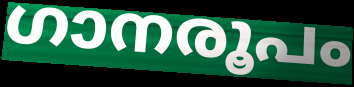
ഗാനരൂപം